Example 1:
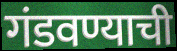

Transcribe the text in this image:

गंडवण्याची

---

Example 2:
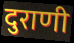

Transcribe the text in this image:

दुराणी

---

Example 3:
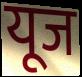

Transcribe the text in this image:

यूज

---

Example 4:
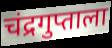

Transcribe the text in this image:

चंद्रगुप्ताला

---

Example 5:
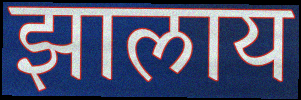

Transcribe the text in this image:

झालाय